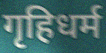
गृहिधर्म